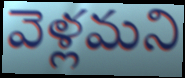
వెళ్లమని